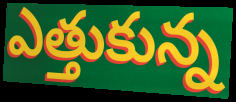
ఎత్తుకున్న